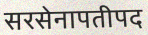
सरसेनापतीपद